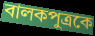
বালকপুত্রকে